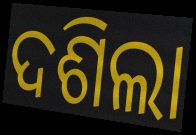
ଦଶିଲା